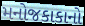
મનોજકાકાનો